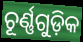
ଚୂର୍ଣ୍ଣଗୁଡ଼ିକ